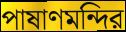
পাষাণমন্দির